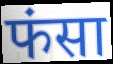
फंसा